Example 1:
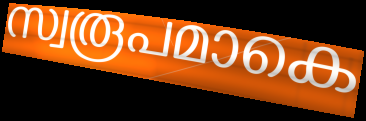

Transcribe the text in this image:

സ്വരൂപമാകെ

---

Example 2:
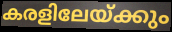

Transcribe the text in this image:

കരളിലേയ്ക്കും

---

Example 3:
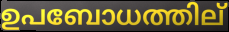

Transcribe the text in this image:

ഉപബോധത്തില്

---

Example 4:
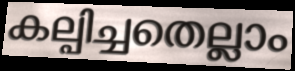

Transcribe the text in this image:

കല്പിച്ചതെല്ലാം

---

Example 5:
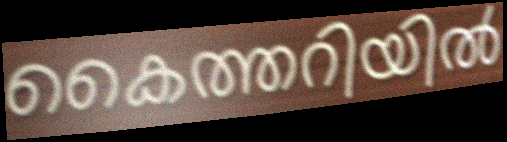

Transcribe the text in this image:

കൈത്തറിയിൽ